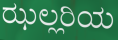
ಝಲ್ಲರಿಯ